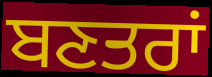
ਬਣਤਰਾਂ